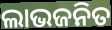
ଲାଭଜନିତ